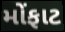
મોંફાટ